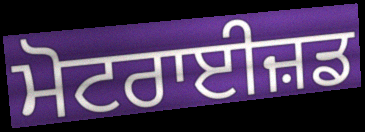
ਮੋਟਰਾਈਜ਼ਡ